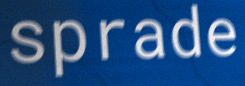
sprade